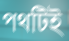
পথটিই